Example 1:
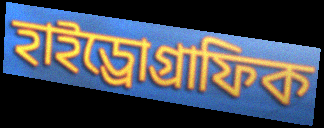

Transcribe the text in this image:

হাইড্রোগ্রাফিক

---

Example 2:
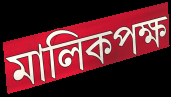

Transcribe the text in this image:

মালিকপক্ষ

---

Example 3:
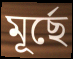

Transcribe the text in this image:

মূর্ছে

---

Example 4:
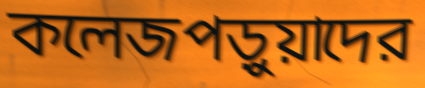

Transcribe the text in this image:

কলেজপড়ুয়াদের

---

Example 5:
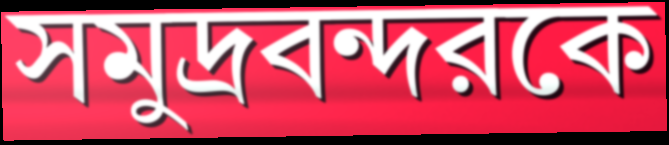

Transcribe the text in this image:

সমুদ্রবন্দরকে